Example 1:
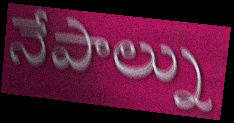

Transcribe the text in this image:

నేపాల్ను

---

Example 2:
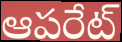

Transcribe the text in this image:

ఆపరేట్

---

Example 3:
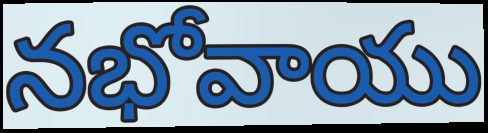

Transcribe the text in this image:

నభోవాయు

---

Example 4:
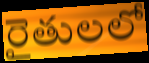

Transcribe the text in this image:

రైతులలో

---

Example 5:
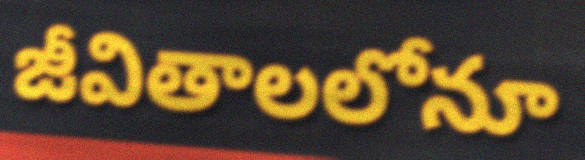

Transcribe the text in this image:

జీవితాలలోనూ